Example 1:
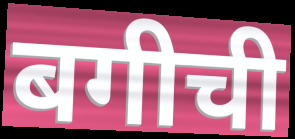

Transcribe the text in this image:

बगीची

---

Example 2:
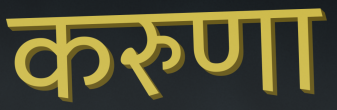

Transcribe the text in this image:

करुणा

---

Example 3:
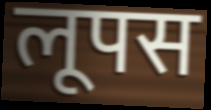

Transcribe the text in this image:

लूपस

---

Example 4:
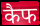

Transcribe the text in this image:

कैफ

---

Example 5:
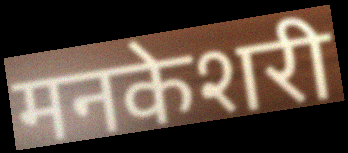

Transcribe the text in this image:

मनकेशरी